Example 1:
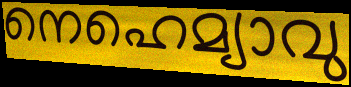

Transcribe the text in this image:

നെഹെമ്യാവു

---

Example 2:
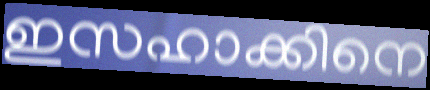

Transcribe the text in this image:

ഇസഹാക്കിനെ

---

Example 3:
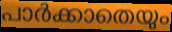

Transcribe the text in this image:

പാർക്കാതെയും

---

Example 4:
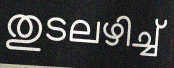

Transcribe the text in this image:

തുടലഴിച്ച്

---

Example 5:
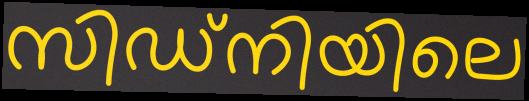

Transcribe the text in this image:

സിഡ്നിയിലെ